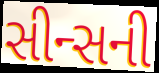
સીન્સની